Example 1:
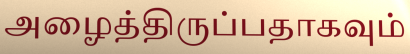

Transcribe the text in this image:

அழைத்திருப்பதாகவும்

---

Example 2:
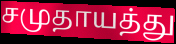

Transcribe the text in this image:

சமுதாயத்து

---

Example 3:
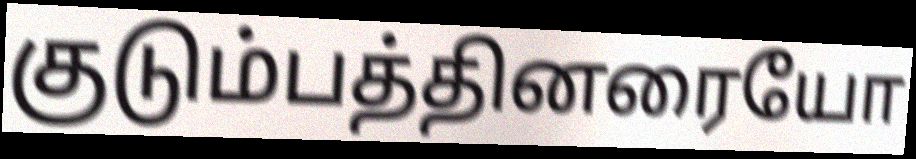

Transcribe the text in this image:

குடும்பத்தினரையோ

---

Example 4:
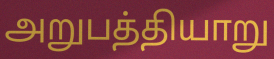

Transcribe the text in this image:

அறுபத்தியாறு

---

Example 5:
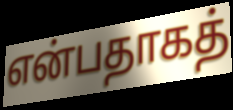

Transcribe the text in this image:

என்பதாகத்